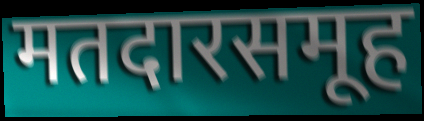
मतदारसमूह